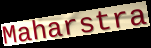
Maharstra